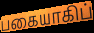
பகையாகிப்